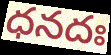
ధనదః